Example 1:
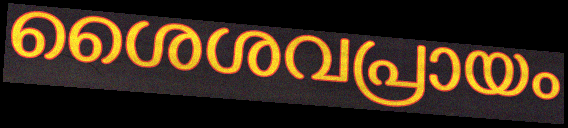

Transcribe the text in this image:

ശൈശവപ്രായം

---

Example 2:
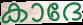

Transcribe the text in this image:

കാദേ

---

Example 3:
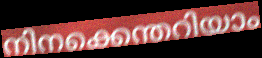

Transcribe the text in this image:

നിനക്കെന്തറിയാം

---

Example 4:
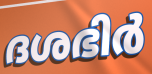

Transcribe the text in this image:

ദശഭിർ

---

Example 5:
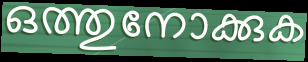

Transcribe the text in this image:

ഒത്തുനോക്കുക